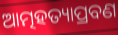
ଆତ୍ମହତ୍ୟାପ୍ରବଣ